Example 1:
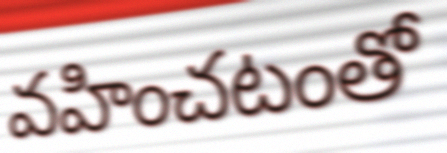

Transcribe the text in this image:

వహించటంతో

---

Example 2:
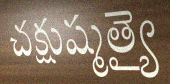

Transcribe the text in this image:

చక్షుష్మత్యై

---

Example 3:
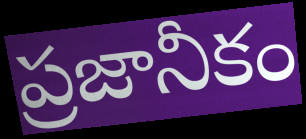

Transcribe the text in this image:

ప్రజానీకం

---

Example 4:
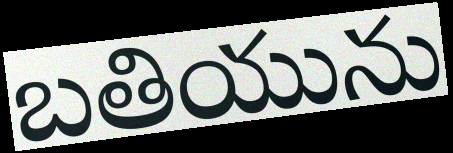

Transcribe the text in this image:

బతియును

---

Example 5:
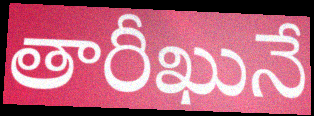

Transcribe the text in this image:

తారీఖునే